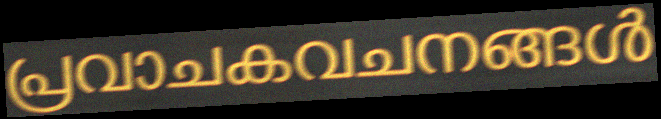
പ്രവാചകവചനങ്ങൾ